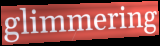
glimmering